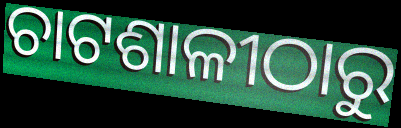
ଚାଟଶାଳୀଠାରୁ